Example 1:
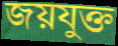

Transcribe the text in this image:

জয়যুক্ত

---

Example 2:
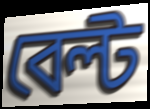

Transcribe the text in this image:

বেল্ট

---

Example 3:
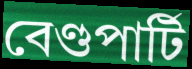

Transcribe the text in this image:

বেণ্ডপাৰ্টি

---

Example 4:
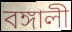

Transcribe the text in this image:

বঙ্গালী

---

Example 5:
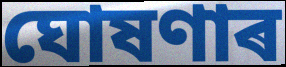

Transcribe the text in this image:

ঘোষণাৰ